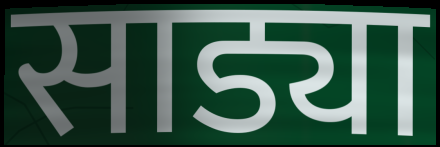
साड्या